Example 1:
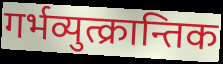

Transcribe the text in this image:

गर्भव्युत्क्रान्तिक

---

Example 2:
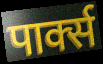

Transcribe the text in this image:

पार्क्‍स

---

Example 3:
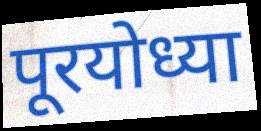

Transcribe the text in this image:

पूरयोध्या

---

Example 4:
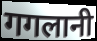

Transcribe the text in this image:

गगलानी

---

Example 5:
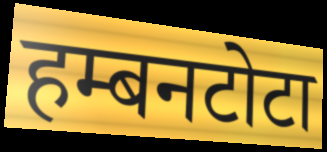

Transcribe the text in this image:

हम्बनटोटा